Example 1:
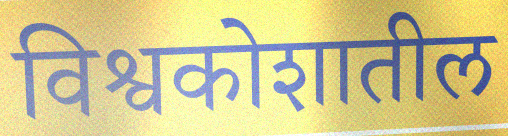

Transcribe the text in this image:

विश्वकोशातील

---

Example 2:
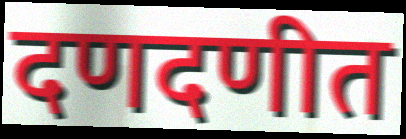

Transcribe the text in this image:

दणदणीत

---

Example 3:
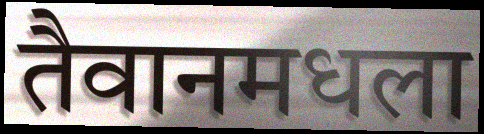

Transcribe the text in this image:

तैवानमधला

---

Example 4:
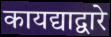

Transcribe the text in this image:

कायद्याद्वारे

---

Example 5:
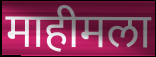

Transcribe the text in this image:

माहीमला